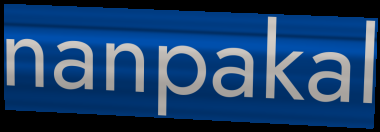
nanpakal